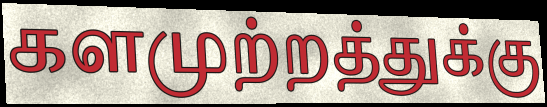
களமுற்றத்துக்கு